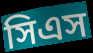
সিএস